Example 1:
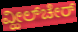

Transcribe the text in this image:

ವ್ಹೀಲ್‌ಚೇರ್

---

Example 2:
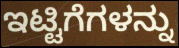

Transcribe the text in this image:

ಇಟ್ಟಿಗೆಗಳನ್ನು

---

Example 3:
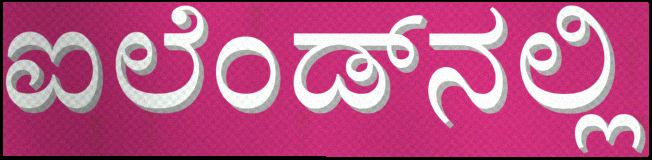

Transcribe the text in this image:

ಐಲೆಂಡ್‌ನಲ್ಲಿ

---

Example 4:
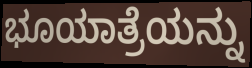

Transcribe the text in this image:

ಭೂಯಾತ್ರೆಯನ್ನು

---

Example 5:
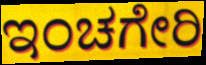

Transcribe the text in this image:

ಇಂಚಗೇರಿ